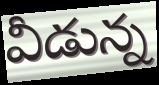
వీడున్న